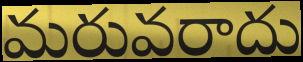
మరువరాదు